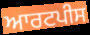
ਆਰਟਪੀਸ